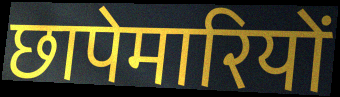
छापेमारियों